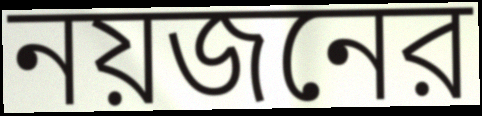
নয়জনের